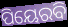
ପିୟେରବି